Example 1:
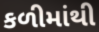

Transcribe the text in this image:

કળીમાંથી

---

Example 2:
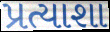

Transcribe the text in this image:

પ્રત્યાશા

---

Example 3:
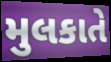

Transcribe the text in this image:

મુલકાતે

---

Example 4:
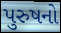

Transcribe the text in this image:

પુરુષનો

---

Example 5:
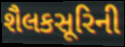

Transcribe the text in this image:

શૈલકસૂરિની